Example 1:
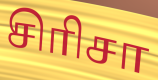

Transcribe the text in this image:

சிரிசா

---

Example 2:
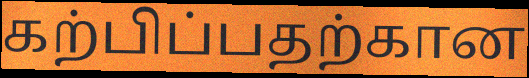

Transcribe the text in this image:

கற்பிப்பதற்கான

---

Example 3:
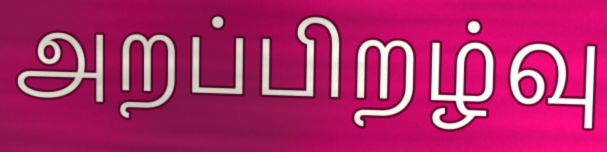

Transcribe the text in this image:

அறப்பிறழ்வு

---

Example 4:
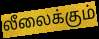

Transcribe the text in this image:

லீலைக்கும்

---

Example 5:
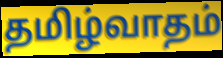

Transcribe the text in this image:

தமிழ்வாதம்